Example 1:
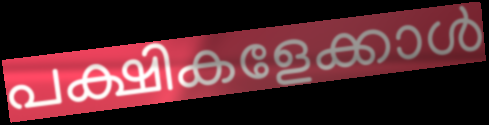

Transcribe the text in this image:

പക്ഷികളേക്കാൾ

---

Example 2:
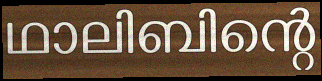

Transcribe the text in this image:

ഥാലിബിന്റെ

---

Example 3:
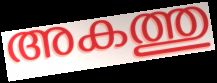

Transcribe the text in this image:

അകത്തു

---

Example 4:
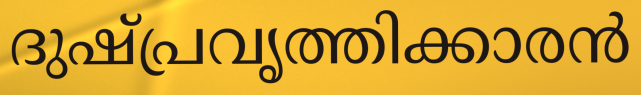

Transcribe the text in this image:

ദുഷ്പ്രവൃത്തിക്കാരൻ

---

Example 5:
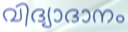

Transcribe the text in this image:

വിദ്യാദാനം